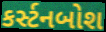
કર્સ્ટનબોશ